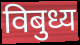
विबुध्य